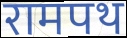
रामपथ